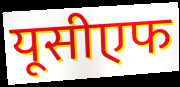
यूसीएफ